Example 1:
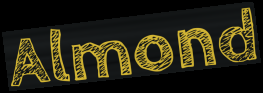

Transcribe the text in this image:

Almond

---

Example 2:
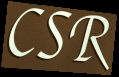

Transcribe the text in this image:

CSR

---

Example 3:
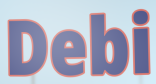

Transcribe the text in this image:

Debi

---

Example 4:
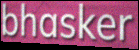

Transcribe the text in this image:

bhasker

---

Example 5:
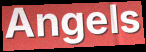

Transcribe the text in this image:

Angels